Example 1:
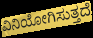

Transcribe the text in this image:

ವಿನಿಯೋಗಿಸುತ್ತದೆ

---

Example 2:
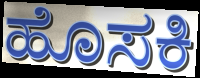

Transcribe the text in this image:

ಹೊಸಕಿ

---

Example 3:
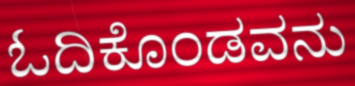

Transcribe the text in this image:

ಓದಿಕೊಂಡವನು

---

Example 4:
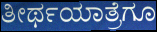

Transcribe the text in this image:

ತೀರ್ಥಯಾತ್ರೆಗೂ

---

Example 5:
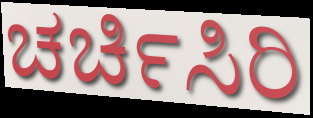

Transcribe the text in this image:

ಚರ್ಚಿಸಿರಿ